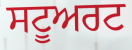
ਸਟੂਅਰਟ